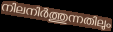
നിലനിർത്തുന്നതിലും